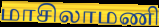
மாசிலாமணி